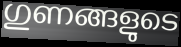
ഗുണങ്ങളുടെ